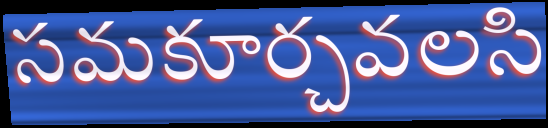
సమకూర్చవలసి